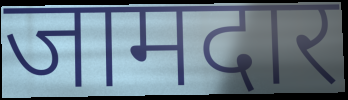
जामदार